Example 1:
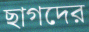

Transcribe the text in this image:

ছাগদের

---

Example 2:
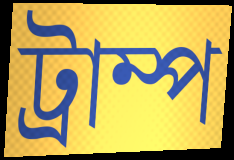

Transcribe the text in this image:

ট্রাম্প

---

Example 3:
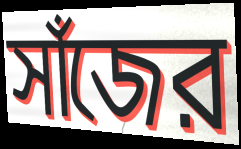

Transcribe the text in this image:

সাঁজের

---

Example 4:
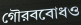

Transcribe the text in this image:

গৌরববোধও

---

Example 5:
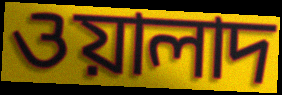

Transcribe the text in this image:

ওয়ালাদ